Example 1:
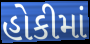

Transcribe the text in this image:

હોકીમાં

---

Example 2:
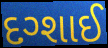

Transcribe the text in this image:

દગ્શાઈ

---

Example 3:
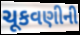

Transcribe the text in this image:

ચૂકવણીની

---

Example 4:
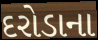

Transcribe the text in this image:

દરોડાના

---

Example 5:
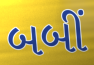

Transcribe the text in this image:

બબીં